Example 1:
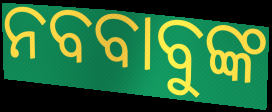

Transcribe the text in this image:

ନବବାବୁଙ୍କ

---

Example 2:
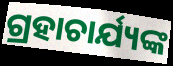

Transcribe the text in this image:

ଗ୍ରହାଚାର୍ଯ୍ୟଙ୍କ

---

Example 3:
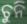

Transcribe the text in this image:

ଚୁନି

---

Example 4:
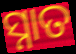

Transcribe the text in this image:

ସ୍ନାତ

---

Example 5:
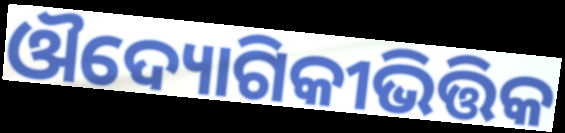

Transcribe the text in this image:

ଔଦ୍ୟୋଗିକୀଭିତ୍ତିକ